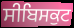
ਸੀਬਿਸਕੁਟ